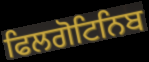
ਫਿਲਗੋਟਿਨਿਬ